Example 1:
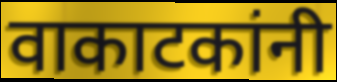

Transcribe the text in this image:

वाकाटकांनी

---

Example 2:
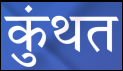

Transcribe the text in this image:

कुंथत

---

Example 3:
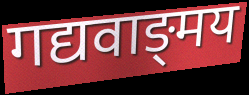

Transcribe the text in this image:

गद्यवाङ्मय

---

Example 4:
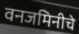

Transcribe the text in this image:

वनजमिनीचे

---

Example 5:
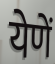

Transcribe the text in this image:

येणें